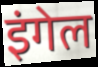
इंगेल